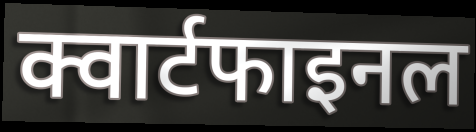
क्वार्टफाइनल